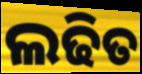
ଲଢିତ